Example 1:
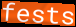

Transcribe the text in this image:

fests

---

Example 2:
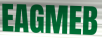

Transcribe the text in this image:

EAGMEB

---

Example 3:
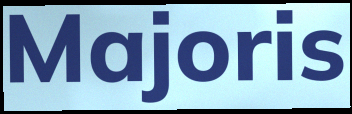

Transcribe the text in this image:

Majoris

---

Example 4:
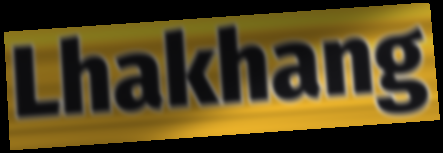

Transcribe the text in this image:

Lhakhang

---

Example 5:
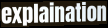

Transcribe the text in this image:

explaination